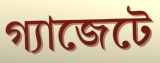
গ্যাজেটে